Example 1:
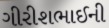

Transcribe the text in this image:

ગીરીશભાઈની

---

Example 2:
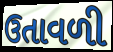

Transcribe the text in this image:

ઉતાવળી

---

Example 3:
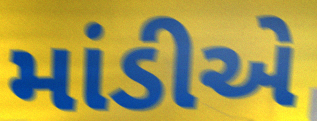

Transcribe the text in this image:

માંડીએ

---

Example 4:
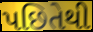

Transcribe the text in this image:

પછિતેથી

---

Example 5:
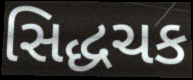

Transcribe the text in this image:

સિદ્ધચક